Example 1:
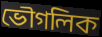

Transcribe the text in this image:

ভৌগলিক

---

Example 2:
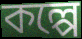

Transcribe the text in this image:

কল্পে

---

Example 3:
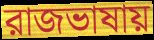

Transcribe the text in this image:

রাজভাষায়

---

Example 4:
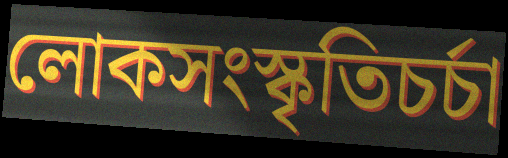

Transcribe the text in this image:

লোকসংস্কৃতিচর্চা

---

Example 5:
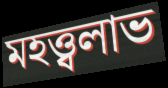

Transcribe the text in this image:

মহত্ত্বলাভ